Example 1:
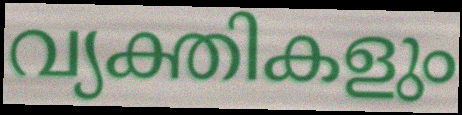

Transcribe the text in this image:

വ്യക്തികളും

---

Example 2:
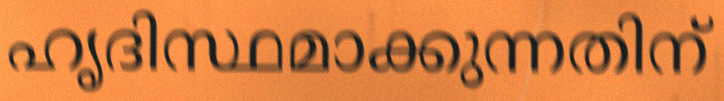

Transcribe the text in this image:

ഹൃദിസ്ഥമാക്കുന്നതിന്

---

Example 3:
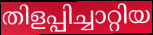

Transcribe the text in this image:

തിളപ്പിച്ചാറ്റിയ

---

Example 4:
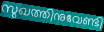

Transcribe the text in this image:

സുഖത്തിനുവേണ്ടി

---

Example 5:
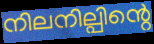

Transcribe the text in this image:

നിലനില്പിന്റെ